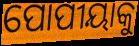
ପୋପୀୟାକୁ